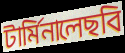
টার্মিনালেছবি